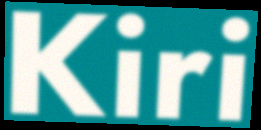
Kiri